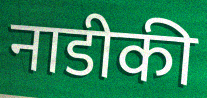
नाडीकी